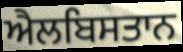
ਐਲਬਿਸਤਾਨ